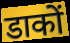
डाकों